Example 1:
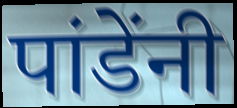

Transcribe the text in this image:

पांडेंनी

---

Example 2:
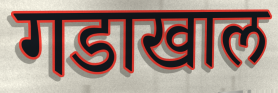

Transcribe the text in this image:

गडाखाल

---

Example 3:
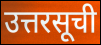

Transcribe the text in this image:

उत्तरसूची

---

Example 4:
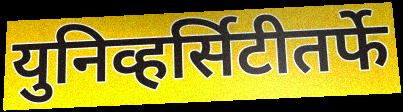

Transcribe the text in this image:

युनिव्हर्सिटीतर्फे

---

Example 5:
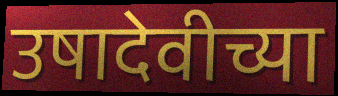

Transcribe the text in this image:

उषादेवीच्या